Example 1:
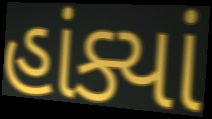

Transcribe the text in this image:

હાંક્યાં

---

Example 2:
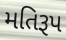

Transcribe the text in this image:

મતિરૂપ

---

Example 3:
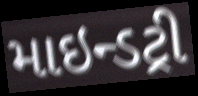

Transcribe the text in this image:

માઇન્ડટ્રી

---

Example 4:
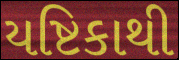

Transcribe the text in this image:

યષ્ટિકાથી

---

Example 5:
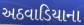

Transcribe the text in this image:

અઠવાડિયાના